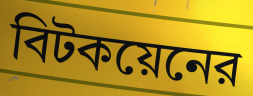
বিটকয়েনের